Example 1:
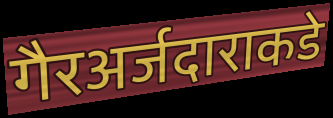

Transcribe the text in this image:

गैरअर्जदाराकडे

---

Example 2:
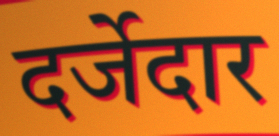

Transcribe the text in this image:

दर्जेदार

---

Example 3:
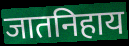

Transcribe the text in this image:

जातनिहाय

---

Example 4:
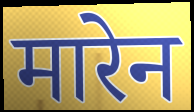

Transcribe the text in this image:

मारेन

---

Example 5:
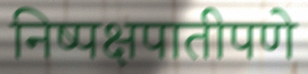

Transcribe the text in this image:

निष्पक्षपातीपणे